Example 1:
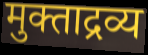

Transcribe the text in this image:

मुक्ताद्रव्य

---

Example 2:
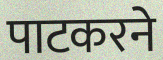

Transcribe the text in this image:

पाटकरने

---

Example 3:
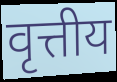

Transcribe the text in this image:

वृत्तीय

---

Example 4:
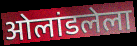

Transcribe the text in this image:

ओलांडलेला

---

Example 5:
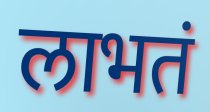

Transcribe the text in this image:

लाभतं